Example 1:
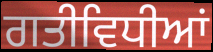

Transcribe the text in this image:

ਗਤੀਵਿਧੀਆਂ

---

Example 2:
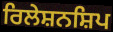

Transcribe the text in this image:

ਰਿਲੇਸ਼ਨਸ਼ਿਪ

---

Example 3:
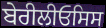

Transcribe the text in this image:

ਬੇਰੀਲੀਓਸਿਸ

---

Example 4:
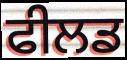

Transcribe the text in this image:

ਫੀਲਡ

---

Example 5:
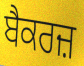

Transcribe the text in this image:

ਬੈਕਰਜ਼